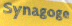
Synagoge